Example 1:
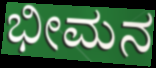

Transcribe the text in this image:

ಭೀಮನ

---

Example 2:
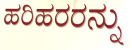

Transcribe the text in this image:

ಹರಿಹರರನ್ನು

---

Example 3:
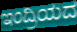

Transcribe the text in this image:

ಇಂದ್ರಿಯದ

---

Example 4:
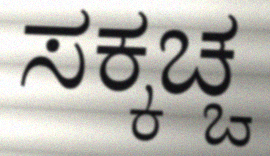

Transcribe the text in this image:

ಸಕ್ಕಚ್ಚ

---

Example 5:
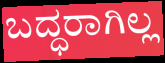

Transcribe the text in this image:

ಬದ್ಧರಾಗಿಲ್ಲ